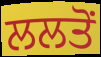
ਲਲਤੋਂ